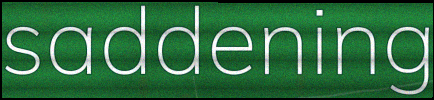
saddening